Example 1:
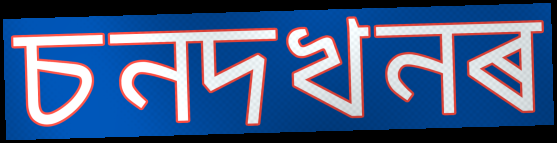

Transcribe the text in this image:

চনদখনৰ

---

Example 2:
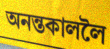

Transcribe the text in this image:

অনন্তকাললৈ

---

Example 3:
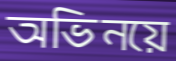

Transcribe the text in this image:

অভিনয়ে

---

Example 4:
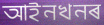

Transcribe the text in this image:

আইনখনৰ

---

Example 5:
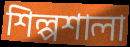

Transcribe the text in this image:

শিল্পশালা